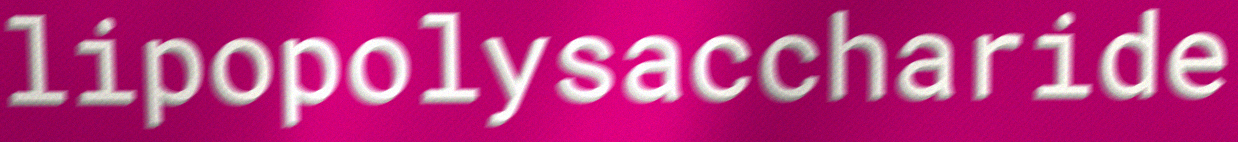
lipopolysaccharide